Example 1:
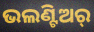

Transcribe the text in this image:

ଭଲଣ୍ଟିଅର୍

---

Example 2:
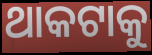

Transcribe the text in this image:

ଥାକଟାକୁ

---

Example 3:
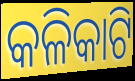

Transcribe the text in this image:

କଳିକାଟି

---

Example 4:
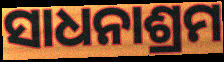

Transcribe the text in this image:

ସାଧନାଶ୍ରମ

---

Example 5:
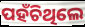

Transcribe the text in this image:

ପହଁଚିଥିଲେ